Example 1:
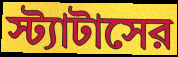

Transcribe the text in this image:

স্ট্যাটাসের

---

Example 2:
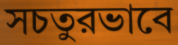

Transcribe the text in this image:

সচতুরভাবে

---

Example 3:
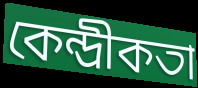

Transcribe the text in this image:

কেন্দ্রীকতা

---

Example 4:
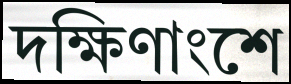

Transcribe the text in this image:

দক্ষিণাংশে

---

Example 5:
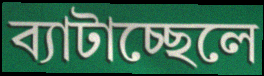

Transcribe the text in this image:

ব্যাটাচ্ছেলে